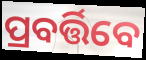
ପ୍ରବର୍ତ୍ତିବେ